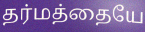
தர்மத்தையே